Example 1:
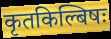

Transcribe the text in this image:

कृतकिल्बिषः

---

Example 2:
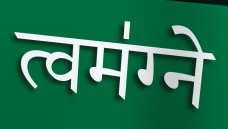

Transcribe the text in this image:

त्वम॑ग्ने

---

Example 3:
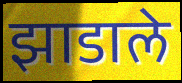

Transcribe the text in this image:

झाडाले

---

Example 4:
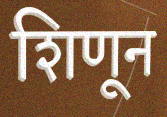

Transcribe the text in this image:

शिणून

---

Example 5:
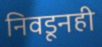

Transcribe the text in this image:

निवडूनही